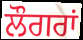
ਲੌਗਰਾਂ